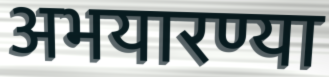
अभयारण्या